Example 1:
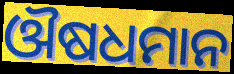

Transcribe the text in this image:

ଔଷଧମାନ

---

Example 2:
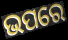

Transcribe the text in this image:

ଭପରେ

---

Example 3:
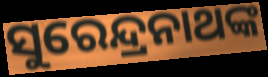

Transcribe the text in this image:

ସୁରେନ୍ଦ୍ରନାଥଙ୍କ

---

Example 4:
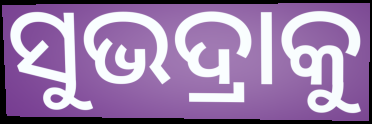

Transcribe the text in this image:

ସୁଭଦ୍ରାକୁ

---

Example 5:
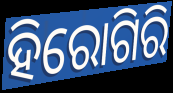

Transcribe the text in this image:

ହିରୋଗିରି